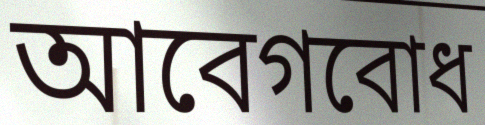
আবেগবোধ